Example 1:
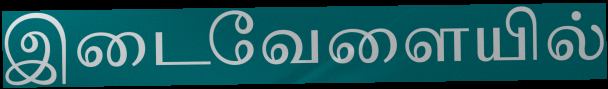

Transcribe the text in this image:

இடைவேளையில்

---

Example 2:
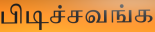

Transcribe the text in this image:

பிடிச்சவங்க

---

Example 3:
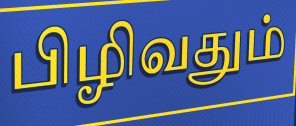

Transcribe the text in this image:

பிழிவதும்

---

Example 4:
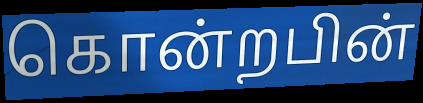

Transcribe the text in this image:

கொன்றபின்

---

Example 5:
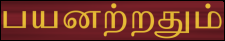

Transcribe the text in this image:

பயனற்றதும்